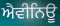
ਐਵੀਨਿਊ